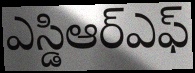
ఎస్డిఆర్ఎఫ్